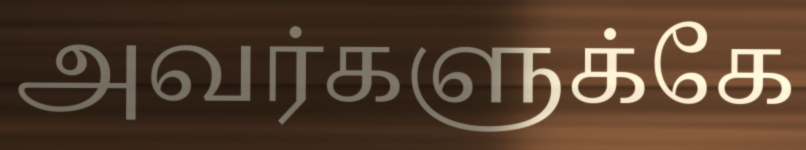
அவர்களுக்கே